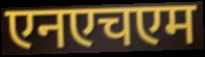
एनएचएम